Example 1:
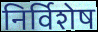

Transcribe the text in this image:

निर्विशेष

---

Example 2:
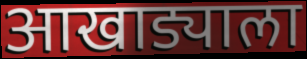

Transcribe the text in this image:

आखाड्याला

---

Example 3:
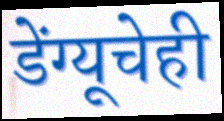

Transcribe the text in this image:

डेंग्यूचेही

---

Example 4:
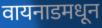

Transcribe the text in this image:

वायनाडमधून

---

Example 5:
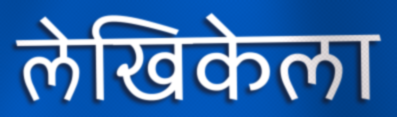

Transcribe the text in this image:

लेखिकेला